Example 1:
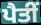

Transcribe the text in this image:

ਪੈਤੀਂ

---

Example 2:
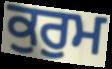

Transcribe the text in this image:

ਕੁਰੁਮ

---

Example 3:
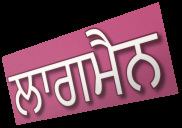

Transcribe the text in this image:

ਲਾਗਮੈਨ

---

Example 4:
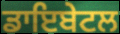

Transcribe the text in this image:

ਡਾਇਬੇਟਲ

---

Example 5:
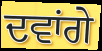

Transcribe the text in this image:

ਦਵਾਂਗੇ